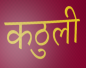
कठुली